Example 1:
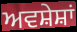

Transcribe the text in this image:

ਅਵਸ਼ੇਸ਼ਾਂ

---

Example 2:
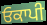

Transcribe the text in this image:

ਓਕਾਪੀ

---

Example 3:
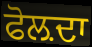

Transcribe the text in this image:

ਫੋਲ਼ਦਾ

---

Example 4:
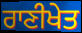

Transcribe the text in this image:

ਰਾਣੀਖੇਤ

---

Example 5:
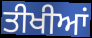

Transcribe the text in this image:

ਤੀਖੀਆਂ